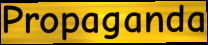
Propaganda